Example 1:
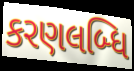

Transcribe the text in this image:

કરણલબ્ધિ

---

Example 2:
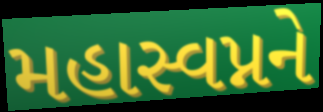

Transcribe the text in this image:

મહાસ્વપ્નને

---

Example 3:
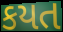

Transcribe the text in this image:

કયત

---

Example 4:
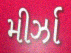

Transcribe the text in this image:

મીર્ઝા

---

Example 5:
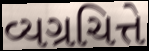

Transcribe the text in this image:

વ્યગ્રચિત્તે